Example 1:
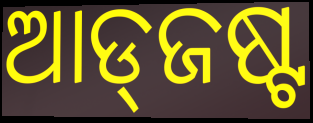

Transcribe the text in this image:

ଆଡ୍‌ଜଷ୍ଟ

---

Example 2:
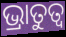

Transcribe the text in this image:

ଭ୍ରାତୁତ୍ଵ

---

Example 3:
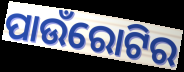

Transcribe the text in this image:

ପାଉଁରୋଟିର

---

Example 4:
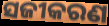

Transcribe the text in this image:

ସଜୀକରଣ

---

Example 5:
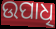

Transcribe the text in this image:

ଉପାଧି